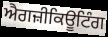
ਐਗਜ਼ੀਕਿਊਟਿੰਗ